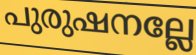
പുരുഷനല്ലേ